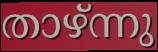
താഴ്ന്നു